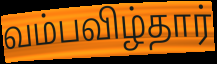
வம்பவிழ்தார்